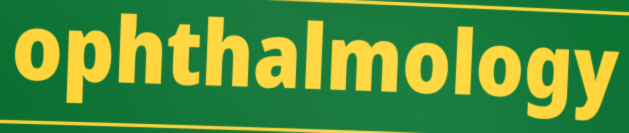
ophthalmology